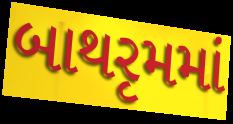
બાથરૃમમાં